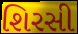
શિરસી